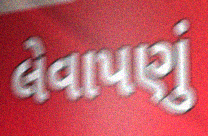
લેવાપણું